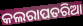
କଲରାପତରିଆ